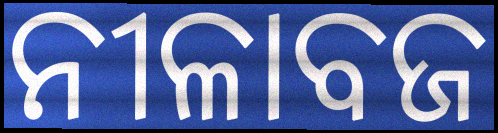
ନୀଳାବଜ